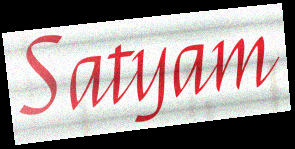
Satyam